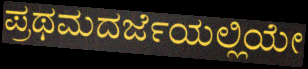
ಪ್ರಥಮದರ್ಜೆಯಲ್ಲಿಯೇ